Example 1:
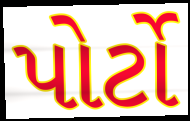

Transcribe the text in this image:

પોર્ટો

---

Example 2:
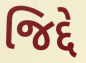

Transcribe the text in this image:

જિદ્દે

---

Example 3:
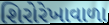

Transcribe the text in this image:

શિરોરેખાવાળા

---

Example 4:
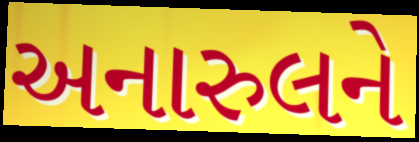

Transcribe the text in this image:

અનારુલને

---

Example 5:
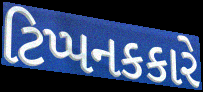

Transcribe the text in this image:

ટિપ્પનકકારે